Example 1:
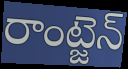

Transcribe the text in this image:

రాంట్జెన్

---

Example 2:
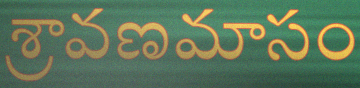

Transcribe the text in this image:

శ్రావణమాసం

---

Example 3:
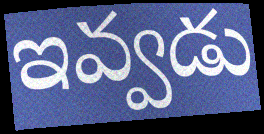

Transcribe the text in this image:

ఇవ్వడు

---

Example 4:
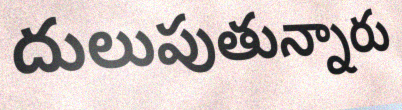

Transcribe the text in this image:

దులుపుతున్నారు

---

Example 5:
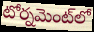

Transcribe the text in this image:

టోర్నమెంట్‌లో